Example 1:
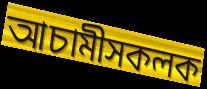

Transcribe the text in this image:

আচামীসকলক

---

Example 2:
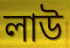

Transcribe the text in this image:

লাউ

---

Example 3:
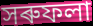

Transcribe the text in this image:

সৰুফলা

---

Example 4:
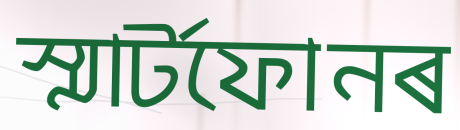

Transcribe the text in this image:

স্মাৰ্টফোনৰ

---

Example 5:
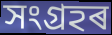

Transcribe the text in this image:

সংগ্ৰহৰ